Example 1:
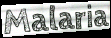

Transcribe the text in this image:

Malaria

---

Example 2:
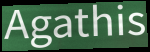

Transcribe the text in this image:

Agathis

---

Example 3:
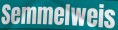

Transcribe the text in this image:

Semmelweis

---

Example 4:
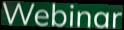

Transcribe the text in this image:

Webinar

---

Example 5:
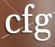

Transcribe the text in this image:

cfg